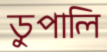
ডুপালি